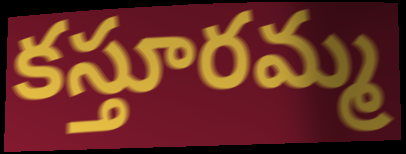
కస్తూరమ్మ